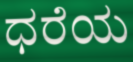
ಧರೆಯ